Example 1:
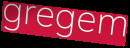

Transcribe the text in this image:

gregem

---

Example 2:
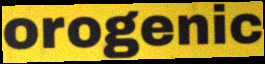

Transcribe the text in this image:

orogenic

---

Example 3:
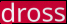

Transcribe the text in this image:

dross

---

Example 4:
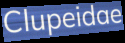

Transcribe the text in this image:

Clupeidae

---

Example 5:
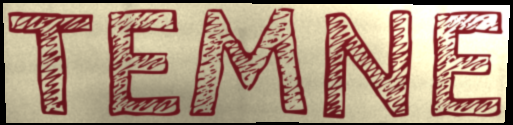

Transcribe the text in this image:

TEMNE